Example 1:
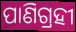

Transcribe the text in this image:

ପାଣିଗ୍ରହୀ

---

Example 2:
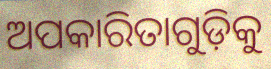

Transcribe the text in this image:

ଅପକାରିତାଗୁଡ଼ିକୁ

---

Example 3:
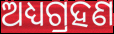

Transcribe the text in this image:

ଅଧ୍ୟଗ୍ରହଣ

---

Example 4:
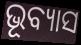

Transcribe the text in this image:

ଭୂବ୍ୟାସ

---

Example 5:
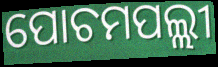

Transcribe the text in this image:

ପୋଚମପଲ୍ଲୀ